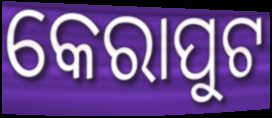
କେରାପୁଟ